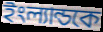
ইংল্যান্ডকে